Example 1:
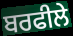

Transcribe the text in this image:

ਬਰਫੀਲੇ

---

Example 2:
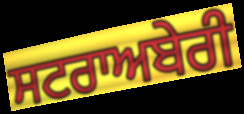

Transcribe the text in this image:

ਸਟਰਾਅਬੇਰੀ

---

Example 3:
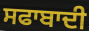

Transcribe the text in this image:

ਸਫਾਬਾਦੀ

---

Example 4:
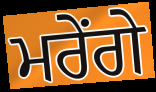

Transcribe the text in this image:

ਮਰੇਂਗੇ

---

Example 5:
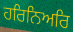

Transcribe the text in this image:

ਹਰਿਨਿਅਰਿ